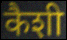
कैशी